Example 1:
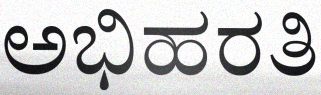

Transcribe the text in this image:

ಅಭಿಹರತಿ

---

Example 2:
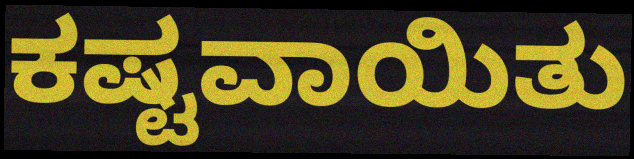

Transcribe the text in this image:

ಕಷ್ಟವಾಯಿತು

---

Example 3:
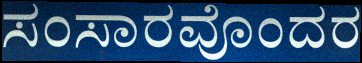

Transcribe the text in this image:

ಸಂಸಾರವೊಂದರ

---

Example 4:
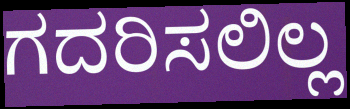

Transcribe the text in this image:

ಗದರಿಸಲಿಲ್ಲ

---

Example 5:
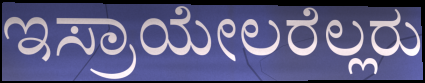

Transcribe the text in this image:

ಇಸ್ರಾಯೇಲರೆಲ್ಲರು